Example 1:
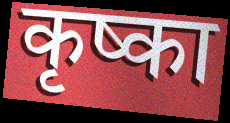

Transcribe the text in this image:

कृष्का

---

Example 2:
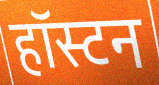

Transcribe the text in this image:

हॉस्टन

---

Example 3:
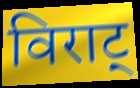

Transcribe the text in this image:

विराट्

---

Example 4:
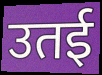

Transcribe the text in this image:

उतई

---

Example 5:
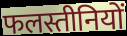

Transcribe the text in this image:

फलस्तीनियों